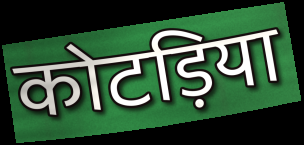
कोटड़िया